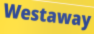
Westaway